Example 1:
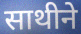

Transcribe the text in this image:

साथीने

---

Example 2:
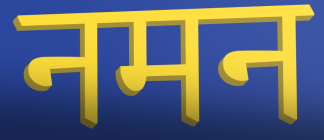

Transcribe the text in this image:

नमन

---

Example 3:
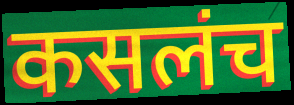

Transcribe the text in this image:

कसलंच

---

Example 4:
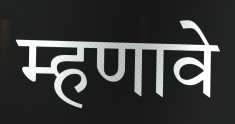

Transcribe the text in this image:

म्हणावे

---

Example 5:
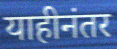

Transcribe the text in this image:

याहीनंतर